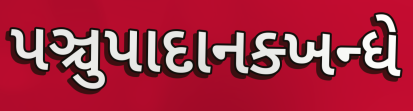
પઞ્ચુપાદાનક્ખન્ધે